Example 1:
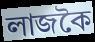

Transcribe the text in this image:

লাজকৈ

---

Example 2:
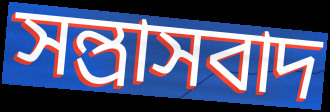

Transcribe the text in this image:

সন্ত্ৰাসবাদ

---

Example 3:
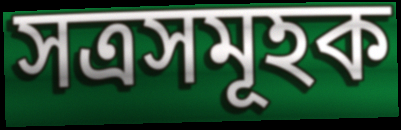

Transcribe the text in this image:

সত্ৰসমূহক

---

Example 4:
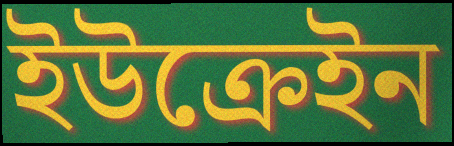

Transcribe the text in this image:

ইউক্ৰেইন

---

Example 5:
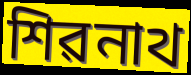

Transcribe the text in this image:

শিৱনাথ